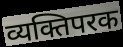
व्यक्तिपरक